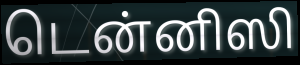
டென்னிஸி